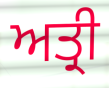
ਅਤ੍ਰੀ